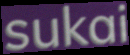
sukai